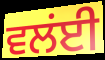
ਵਲਂਈ